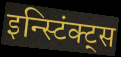
इन्स्टिंक्ट्स